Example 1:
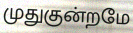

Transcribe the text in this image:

முதுகுன்றமே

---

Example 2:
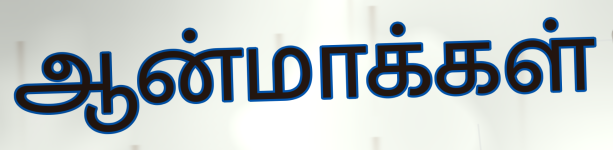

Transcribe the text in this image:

ஆன்மாக்கள்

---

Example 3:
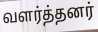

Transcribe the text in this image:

வளர்த்தனர்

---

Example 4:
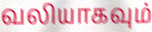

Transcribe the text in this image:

வலியாகவும்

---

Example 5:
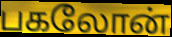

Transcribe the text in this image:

பகலோன்